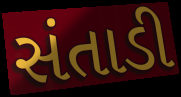
સંતાડી